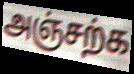
அஞ்சற்க